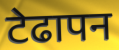
टेढापन